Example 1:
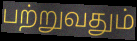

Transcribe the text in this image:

பற்றுவதும்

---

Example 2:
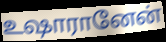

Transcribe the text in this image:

உஷாரானேன்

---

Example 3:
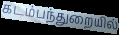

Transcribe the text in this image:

கடம்பந்துறையில்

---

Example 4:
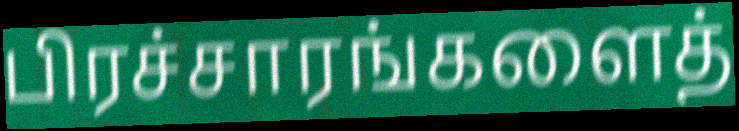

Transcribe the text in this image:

பிரச்சாரங்களைத்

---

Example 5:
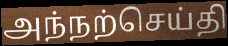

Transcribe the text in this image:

அந்நற்செய்தி